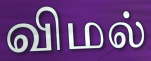
விமல்